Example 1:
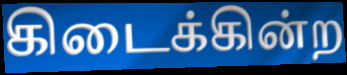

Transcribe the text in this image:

கிடைக்கின்ற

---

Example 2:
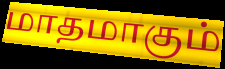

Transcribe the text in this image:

மாதமாகும்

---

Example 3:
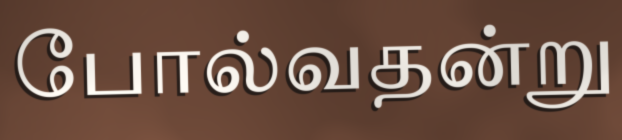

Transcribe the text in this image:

போல்வதன்று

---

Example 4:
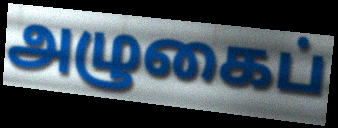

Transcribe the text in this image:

அழுகைப்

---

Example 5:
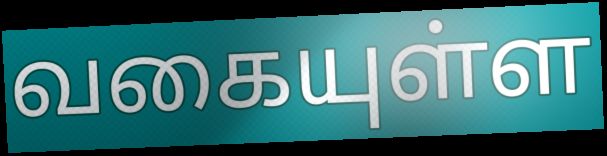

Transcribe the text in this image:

வகையுள்ள